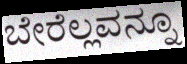
ಬೇರೆಲ್ಲವನ್ನೂ